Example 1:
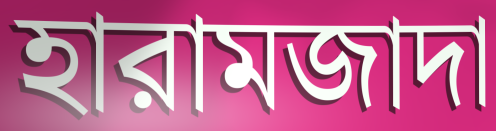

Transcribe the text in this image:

হারামজাদা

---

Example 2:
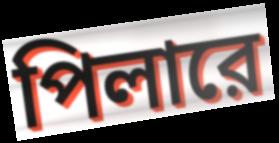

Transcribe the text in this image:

পিলারে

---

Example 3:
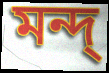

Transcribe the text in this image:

মন্দ্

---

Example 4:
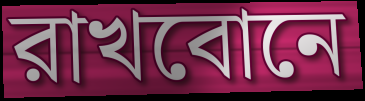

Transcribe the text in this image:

রাখবোনে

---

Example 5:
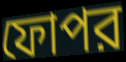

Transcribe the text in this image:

ফোপর